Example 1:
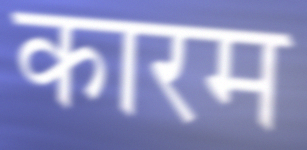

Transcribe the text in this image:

कारम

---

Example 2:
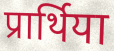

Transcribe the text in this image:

प्रार्थिया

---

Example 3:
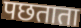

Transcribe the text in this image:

पछताता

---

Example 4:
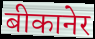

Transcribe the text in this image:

बीकानेर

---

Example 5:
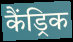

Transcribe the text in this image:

कैंड्रिक